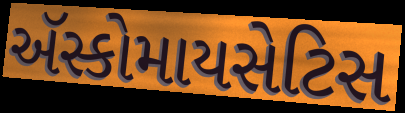
ઍસ્કોમાયસેટિસ